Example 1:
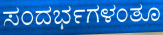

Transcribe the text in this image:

ಸಂದರ್ಭಗಳಂತೂ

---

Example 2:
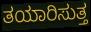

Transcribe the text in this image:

ತಯಾರಿಸುತ್ತ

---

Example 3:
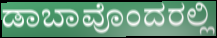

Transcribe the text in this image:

ಡಾಬಾವೊಂದರಲ್ಲಿ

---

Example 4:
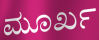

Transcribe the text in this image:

ಮೂರ್ಖ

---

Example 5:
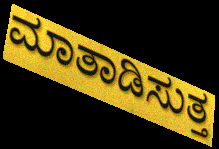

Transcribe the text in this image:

ಮಾತಾಡಿಸುತ್ತ